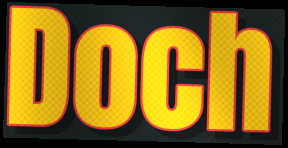
Doch